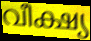
വീക്ഷ്യ